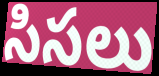
సిసలు